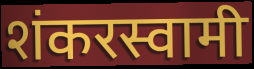
शंकरस्वामी